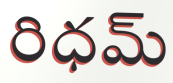
రిధమ్